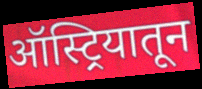
ऑस्ट्रियातून